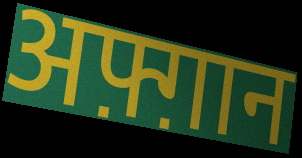
अफ़्ग़ान